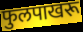
फुलपाखरू